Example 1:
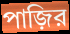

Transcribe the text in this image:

পাজ়ির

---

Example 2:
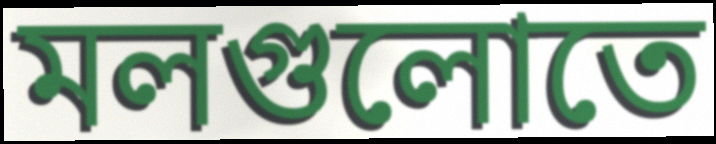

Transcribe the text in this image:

মলগুলোতে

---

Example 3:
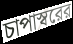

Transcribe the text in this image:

চাপাস্বরের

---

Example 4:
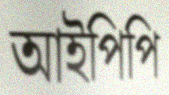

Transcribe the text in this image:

আইপিপি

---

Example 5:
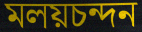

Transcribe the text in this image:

মলয়চন্দন